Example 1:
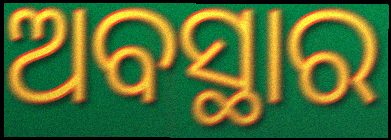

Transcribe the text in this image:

ଅବସ୍ଥାର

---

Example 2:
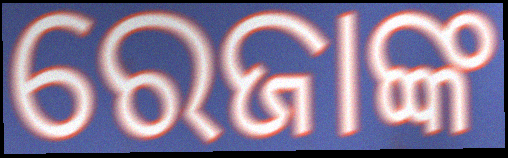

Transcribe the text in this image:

ରେଜାଙ୍କ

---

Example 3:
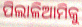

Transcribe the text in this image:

ପିଲାଳିଆମିକୁ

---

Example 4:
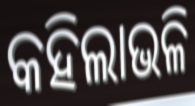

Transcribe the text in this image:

କହିଲାଭଳି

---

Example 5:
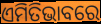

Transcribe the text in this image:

ଏମିତିଭାବରେ